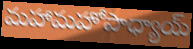
మహామహోపాధ్యాయ్